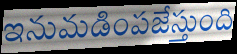
ఇనుమడింపజేస్తుంది